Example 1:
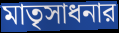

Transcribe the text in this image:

মাতৃসাধনার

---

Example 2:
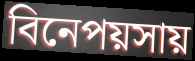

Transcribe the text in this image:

বিনেপয়সায়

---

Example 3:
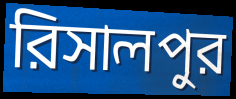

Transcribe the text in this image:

রিসালপুর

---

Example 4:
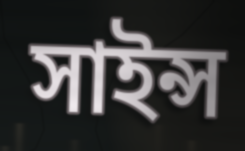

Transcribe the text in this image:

সাইন্স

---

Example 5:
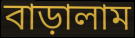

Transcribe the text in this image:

বাড়ালাম